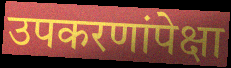
उपकरणांपेक्षा